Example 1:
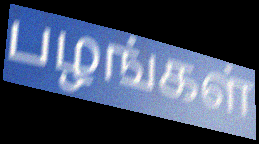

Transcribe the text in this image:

பழங்கள்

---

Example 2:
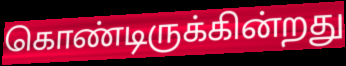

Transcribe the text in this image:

கொண்டிருக்கின்றது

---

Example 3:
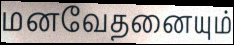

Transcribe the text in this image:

மனவேதனையும்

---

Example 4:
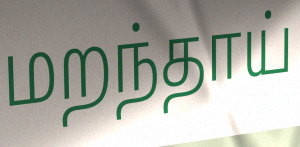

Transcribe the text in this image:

மறந்தாய்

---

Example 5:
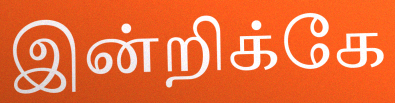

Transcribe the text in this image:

இன்றிக்கே